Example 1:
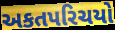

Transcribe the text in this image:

અકતપરિચયો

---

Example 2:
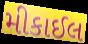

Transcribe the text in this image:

મીકાઈલ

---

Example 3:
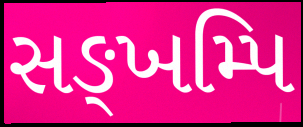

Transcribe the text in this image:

સઙ્ખમ્પિ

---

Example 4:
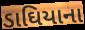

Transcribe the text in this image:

ડાઘિયાના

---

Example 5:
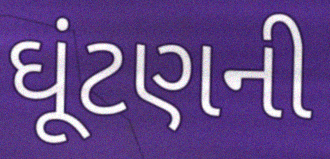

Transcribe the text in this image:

ઘૂંટણની